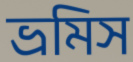
ভ্রমিস